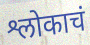
श्लोकाचं